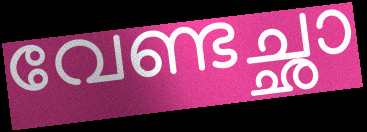
വേണ്ടച്ഛാ